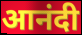
आनंदी